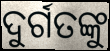
ଦୁର୍ଗତଙ୍କୁ